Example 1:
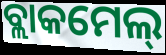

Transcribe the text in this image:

ବ୍ଲାକମେଲ୍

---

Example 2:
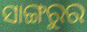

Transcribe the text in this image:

ସାଙ୍ଗରୁର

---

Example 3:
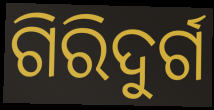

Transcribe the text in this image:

ଗିରିଦୁର୍ଗ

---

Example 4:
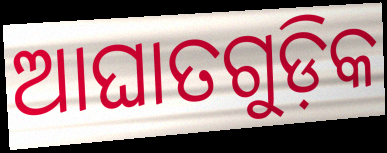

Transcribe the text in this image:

ଆଘାତଗୁଡ଼ିକ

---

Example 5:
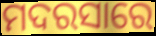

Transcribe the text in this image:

ମଦରସାରେ